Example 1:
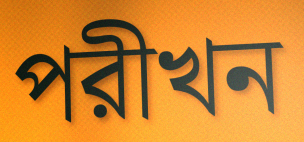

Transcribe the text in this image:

পরীখন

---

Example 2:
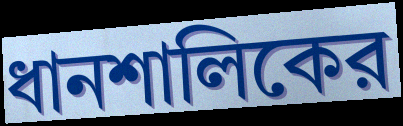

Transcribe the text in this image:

ধানশালিকের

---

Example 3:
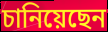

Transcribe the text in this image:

চানিয়েছেন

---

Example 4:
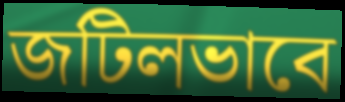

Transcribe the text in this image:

জটিলভাবে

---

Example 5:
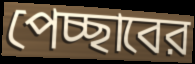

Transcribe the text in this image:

পেচ্ছাবের